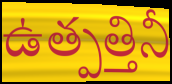
ఉత్పత్తినీ